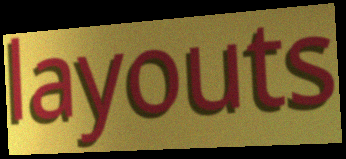
layouts